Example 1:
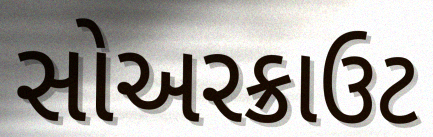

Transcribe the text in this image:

સોઅરક્રાઉટ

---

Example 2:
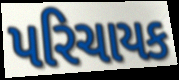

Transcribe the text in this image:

પરિચાયક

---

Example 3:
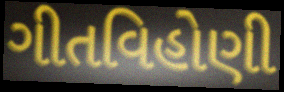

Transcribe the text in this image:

ગીતવિહોણી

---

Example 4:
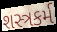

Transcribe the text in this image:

શસ્ત્રકર્મ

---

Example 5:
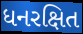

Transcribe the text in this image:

ધનરક્ષિત